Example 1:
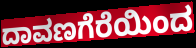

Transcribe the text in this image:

ದಾವಣಗೆರೆಯಿಂದ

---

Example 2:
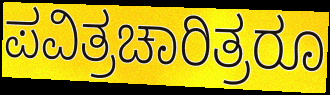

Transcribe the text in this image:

ಪವಿತ್ರಚಾರಿತ್ರರೂ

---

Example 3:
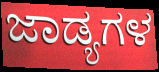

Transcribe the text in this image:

ಜಾಡ್ಯಗಳ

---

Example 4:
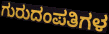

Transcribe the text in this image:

ಗುರುದಂಪತಿಗಳ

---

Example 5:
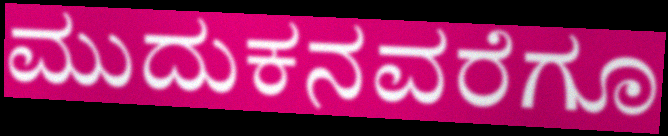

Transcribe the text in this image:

ಮುದುಕನವರೆಗೂ